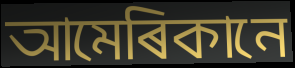
আমেৰিকানে